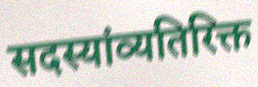
सदस्यांव्यतिरिक्त